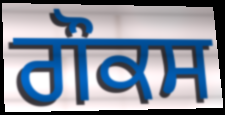
ਗੌਕਸ